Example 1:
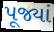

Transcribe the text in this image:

પૂજ્યાં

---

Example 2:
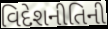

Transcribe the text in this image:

વિદેશનીતિની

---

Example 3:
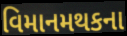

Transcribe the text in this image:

વિમાનમથકના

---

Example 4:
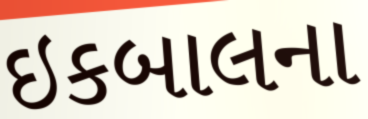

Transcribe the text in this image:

ઇકબાલના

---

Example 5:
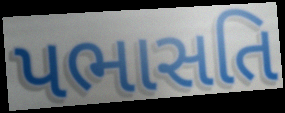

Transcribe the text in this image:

પભાસતિ